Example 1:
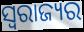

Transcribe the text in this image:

ସ୍ୱରାଜ୍ୟର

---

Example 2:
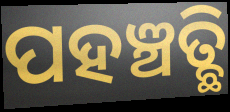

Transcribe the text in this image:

ପହଞ୍ଚତ୍ଛି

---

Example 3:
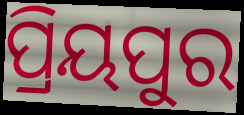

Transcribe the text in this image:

ପ୍ରିୟପୁର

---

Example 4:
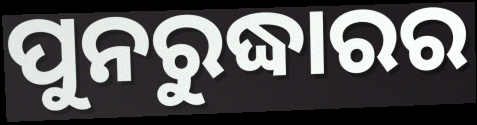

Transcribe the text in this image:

ପୁନରୁଦ୍ଧାରର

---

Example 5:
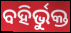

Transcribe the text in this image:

ବହିର୍ଭୁକ୍ତ